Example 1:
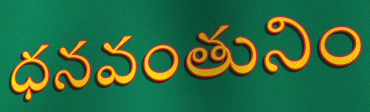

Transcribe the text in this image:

ధనవంతునిం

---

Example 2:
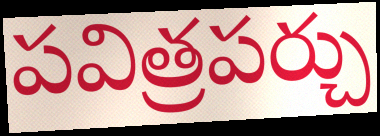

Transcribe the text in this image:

పవిత్రపర్చు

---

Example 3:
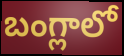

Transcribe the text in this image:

బంగ్లాలో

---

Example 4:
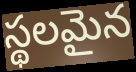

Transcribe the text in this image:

స్థలమైన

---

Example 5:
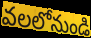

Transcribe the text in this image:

వలలోనుండి